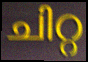
ചിറ്റ